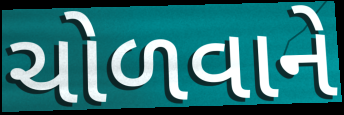
ચોળવાને